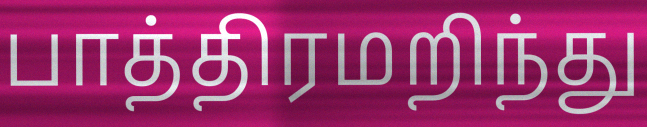
பாத்திரமறிந்து